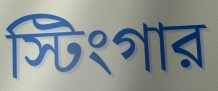
স্টিংগার